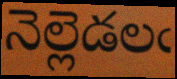
నెల్లెడలఁ